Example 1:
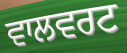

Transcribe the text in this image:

ਵਾਲਵਰਟ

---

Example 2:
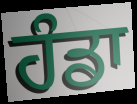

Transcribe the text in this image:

ਹੰਡਾ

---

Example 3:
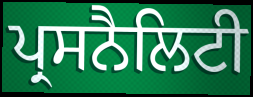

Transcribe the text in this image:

ਪ੍ਰਸਨੈਲਿਟੀ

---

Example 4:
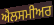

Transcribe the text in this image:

ਐਲਸਮੀਅਰ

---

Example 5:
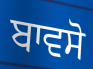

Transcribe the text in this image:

ਬਾਵਸੋ